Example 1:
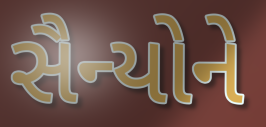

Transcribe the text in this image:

સૈન્યોને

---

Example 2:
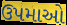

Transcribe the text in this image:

ઉપમાઓ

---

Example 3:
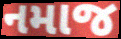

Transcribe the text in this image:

નમાજ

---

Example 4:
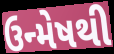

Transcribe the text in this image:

ઉન્મેષથી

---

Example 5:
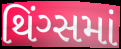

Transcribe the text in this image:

થિંગ્સમાં